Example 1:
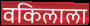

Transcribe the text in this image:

वकिलाला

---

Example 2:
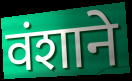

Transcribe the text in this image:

वंशाने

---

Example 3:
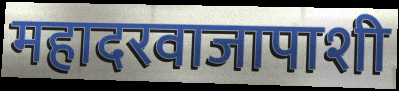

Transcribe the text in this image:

महादरवाजापाशी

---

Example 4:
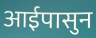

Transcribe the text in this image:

आईपासुन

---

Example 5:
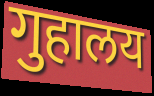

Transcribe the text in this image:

गुहालय